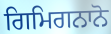
ਗਿਮਿਗਨਾਨੋ